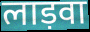
लाड़वा